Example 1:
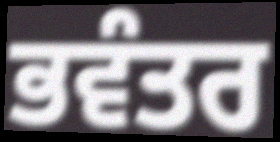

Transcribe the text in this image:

ਭਵੰਤਰ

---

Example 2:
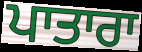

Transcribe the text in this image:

ਪਾਤਾਰਾ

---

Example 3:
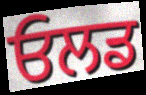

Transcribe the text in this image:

ਓਲਡ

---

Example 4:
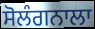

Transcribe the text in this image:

ਸੋਲੰਗਨਾਲਾ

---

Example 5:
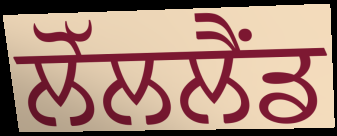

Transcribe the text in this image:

ਲੋੱਲਲੈਂਡ